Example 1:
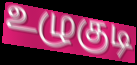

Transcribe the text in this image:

உழுகுடி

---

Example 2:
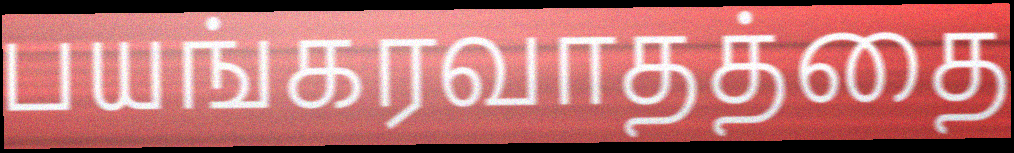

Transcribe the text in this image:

பயங்கரவாதத்தை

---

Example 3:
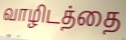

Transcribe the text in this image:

வாழிடத்தை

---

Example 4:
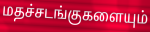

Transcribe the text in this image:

மதச்சடங்குகளையும்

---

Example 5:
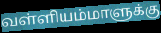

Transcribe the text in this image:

வள்ளியம்மாளுக்கு